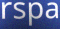
rspa